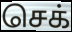
செக்